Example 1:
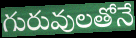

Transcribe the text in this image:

గురువులతోనే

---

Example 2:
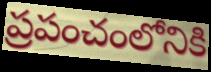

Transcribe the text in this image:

ప్రపంచంలోనికి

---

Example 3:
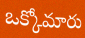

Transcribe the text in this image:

ఒక్కోమారు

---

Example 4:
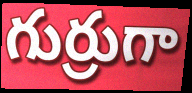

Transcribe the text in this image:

గుర్రుగా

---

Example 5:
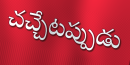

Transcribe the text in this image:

చచ్చేటప్పుడు